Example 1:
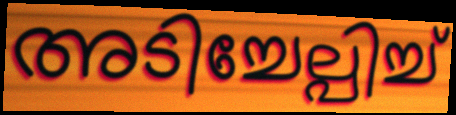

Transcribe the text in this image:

അടിച്ചേല്പിച്ച്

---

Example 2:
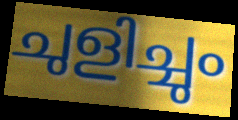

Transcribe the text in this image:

ചുളിച്ചും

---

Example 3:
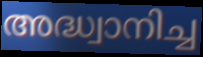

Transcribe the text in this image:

അദ്ധ്വാനിച്ച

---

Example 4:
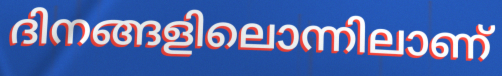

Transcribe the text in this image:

ദിനങ്ങളിലൊന്നിലാണ്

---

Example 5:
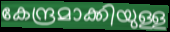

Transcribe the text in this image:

കേന്ദ്രമാക്കിയുള്ള